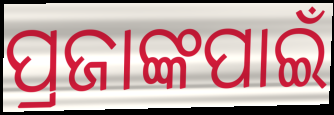
ପ୍ରଜାଙ୍କପାଇଁ